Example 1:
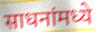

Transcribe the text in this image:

साधनांमध्ये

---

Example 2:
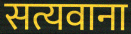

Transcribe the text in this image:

सत्यवाना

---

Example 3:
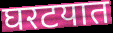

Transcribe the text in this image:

घरटयात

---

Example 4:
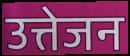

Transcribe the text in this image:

उत्तेजन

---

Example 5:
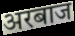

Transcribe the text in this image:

अरबाज